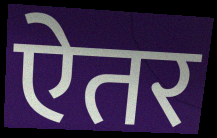
ऐतर